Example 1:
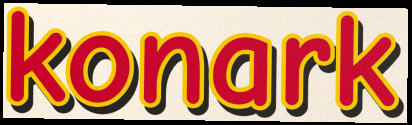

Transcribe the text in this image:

konark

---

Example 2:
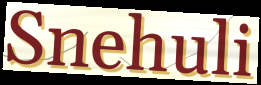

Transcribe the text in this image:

Snehuli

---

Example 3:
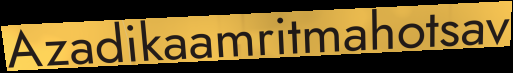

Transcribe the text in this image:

Azadikaamritmahotsav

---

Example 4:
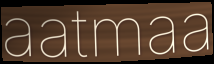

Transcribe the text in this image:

aatmaa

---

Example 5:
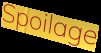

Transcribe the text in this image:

Spoilage